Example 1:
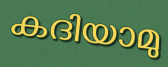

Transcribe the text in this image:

കദിയാമു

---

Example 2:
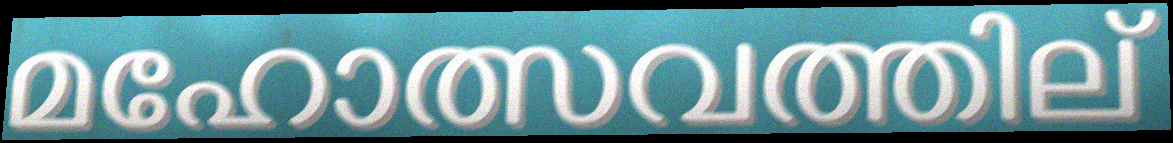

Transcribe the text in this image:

മഹോത്സവത്തില്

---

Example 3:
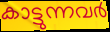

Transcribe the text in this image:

കാട്ടുന്നവർ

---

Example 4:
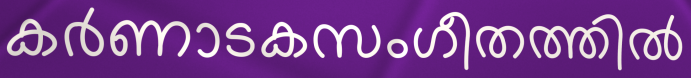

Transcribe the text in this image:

കർണാടകസംഗീതത്തിൽ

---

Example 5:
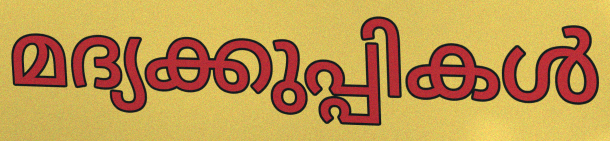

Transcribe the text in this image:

മദ്യക്കുപ്പികൾ